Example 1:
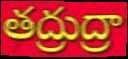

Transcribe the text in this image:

తద్రుద్రా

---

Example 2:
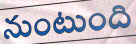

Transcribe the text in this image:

నుంటుంది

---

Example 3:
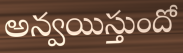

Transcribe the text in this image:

అన్వయిస్తుందో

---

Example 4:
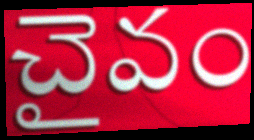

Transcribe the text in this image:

చైవం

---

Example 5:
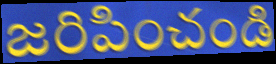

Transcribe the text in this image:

జరిపించండి